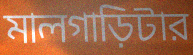
মালগাড়িটার